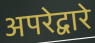
अपरेद्वारे